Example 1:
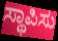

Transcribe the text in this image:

ಸ್ಥಾಪಿಸು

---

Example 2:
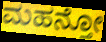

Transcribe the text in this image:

ಮಹನ್ತೋ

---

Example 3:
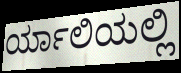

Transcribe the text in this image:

ರ್ಯಾಲಿಯಲ್ಲಿ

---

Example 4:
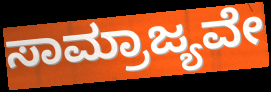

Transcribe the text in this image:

ಸಾಮ್ರಾಜ್ಯವೇ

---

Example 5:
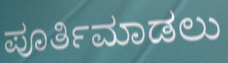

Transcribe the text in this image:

ಪೂರ್ತಿಮಾಡಲು